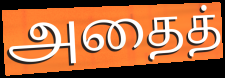
அதைத்